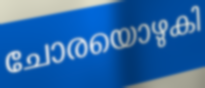
ചോരയൊഴുകി